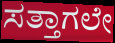
ಸತ್ತಾಗಲೇ